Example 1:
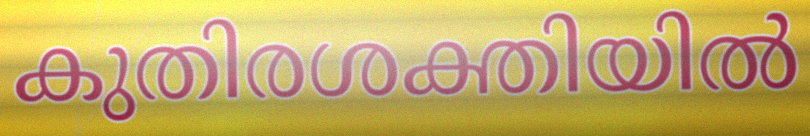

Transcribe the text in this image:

കുതിരശക്തിയിൽ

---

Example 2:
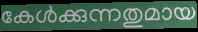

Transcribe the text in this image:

കേൾക്കുന്നതുമായ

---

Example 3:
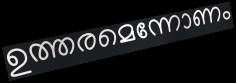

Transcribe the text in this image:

ഉത്തരമെന്നോണം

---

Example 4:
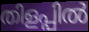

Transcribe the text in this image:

തിളപ്പിൽ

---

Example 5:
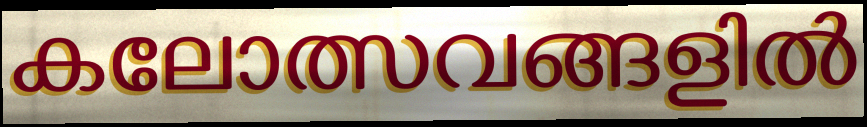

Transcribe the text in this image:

കലോത്സവങ്ങളിൽ